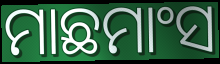
ମାଛମାଂସ